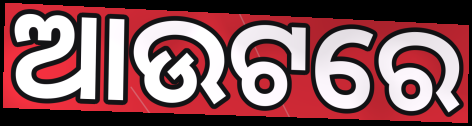
ଆଉଟରେ